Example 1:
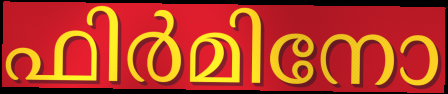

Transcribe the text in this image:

ഫിർമിനോ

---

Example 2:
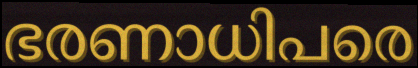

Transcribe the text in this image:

ഭരണാധിപരെ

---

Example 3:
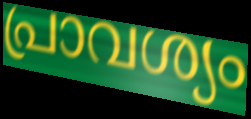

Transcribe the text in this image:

പ്രാവശ്യം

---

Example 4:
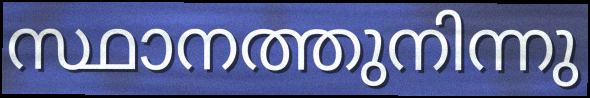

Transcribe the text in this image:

സ്ഥാനത്തുനിന്നു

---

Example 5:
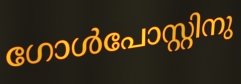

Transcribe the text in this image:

ഗോൾപോസ്റ്റിനു